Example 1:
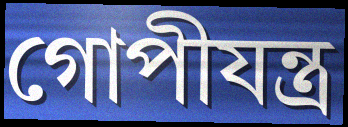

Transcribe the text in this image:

গোপীযন্ত্র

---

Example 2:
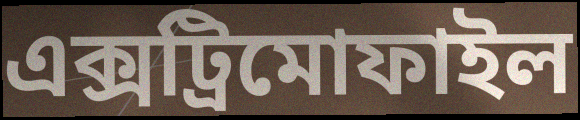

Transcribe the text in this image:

এক্সট্রিমোফাইল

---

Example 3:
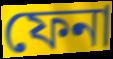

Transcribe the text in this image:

ফেনা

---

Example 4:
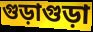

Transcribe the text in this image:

গুড়াগুড়া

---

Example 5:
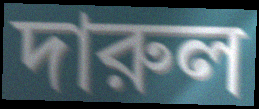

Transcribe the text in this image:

দারুল